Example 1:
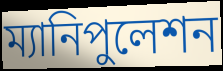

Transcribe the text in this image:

ম্যানিপুলেশন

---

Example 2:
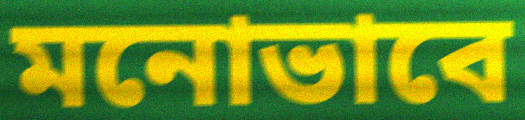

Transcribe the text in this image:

মনোভাবে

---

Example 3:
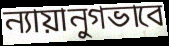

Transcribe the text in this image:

ন্যায়ানুগভাবে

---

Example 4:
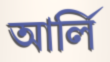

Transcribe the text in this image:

আর্লি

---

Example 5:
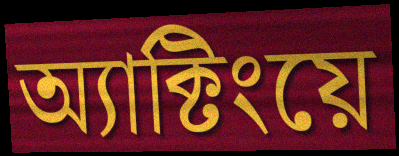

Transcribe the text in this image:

অ্যাক্টিংয়ে